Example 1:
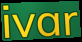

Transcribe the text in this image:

ivar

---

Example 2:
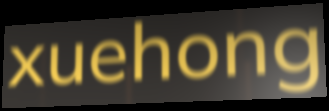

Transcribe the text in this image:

xuehong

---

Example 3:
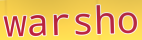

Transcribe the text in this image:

warsho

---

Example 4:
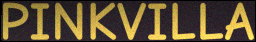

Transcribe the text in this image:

PINKVILLA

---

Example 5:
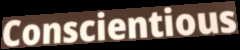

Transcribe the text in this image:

Conscientious